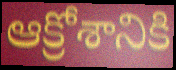
ఆక్రోశానికి